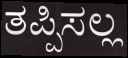
ತಪ್ಪಿಸಲ್ಲ